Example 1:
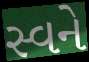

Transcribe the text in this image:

સ્વને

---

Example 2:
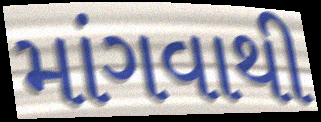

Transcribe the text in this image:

માંગવાથી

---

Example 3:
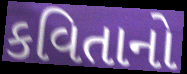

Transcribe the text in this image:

કવિતાનો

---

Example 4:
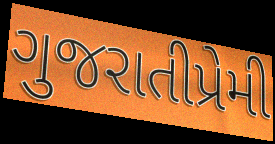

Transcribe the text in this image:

ગુજરાતીપ્રેમી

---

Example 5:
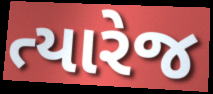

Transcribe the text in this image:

ત્યારેજ